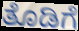
ತೊಡಿಗೆ